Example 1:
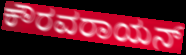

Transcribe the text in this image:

ಕೌರವರಾಯನ್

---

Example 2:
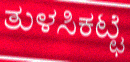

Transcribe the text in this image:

ತುಳಸಿಕಟ್ಟೆ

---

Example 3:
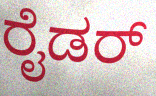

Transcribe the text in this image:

ರೈಡರ್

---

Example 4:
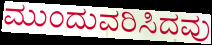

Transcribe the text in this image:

ಮುಂದುವರಿಸಿದವು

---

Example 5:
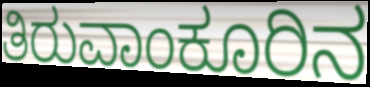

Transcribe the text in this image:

ತಿರುವಾಂಕೂರಿನ